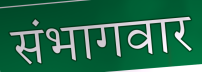
संभागवार